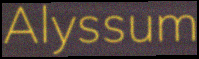
Alyssum